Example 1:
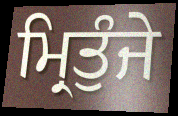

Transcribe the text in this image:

ਮ੍ਰਿਤੁੰਜੇ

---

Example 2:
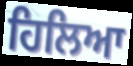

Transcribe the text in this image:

ਹਿਲਿਆ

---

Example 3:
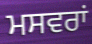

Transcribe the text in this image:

ਮਸਵਰਾਂ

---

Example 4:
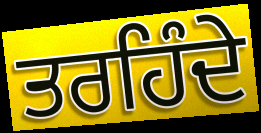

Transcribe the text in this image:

ਤਰਹਿੰਦੇ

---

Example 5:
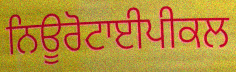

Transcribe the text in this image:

ਨਿਊਰੋਟਾਈਪੀਕਲ